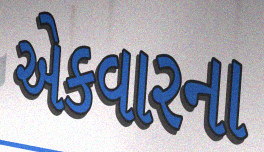
એકવારના